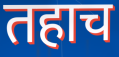
तहाच